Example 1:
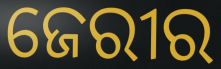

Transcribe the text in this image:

ଜେରୀର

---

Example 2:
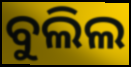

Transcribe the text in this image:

ବୁଲିଲ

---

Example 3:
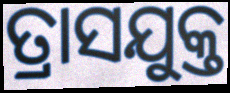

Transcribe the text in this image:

ତ୍ରାସଯୁକ୍ତ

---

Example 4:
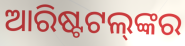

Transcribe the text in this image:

ଆରିଷ୍ଟଟଲ୍‌ଙ୍କର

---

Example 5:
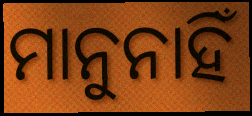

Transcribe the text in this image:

ମାନୁନାହିଁ